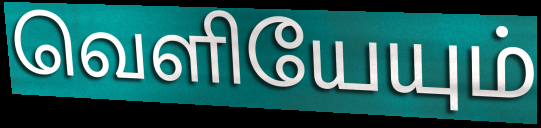
வெளியேயும்